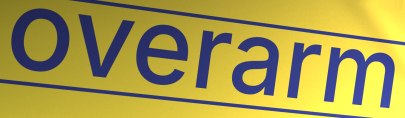
overarm